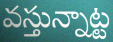
వస్తున్నాట్ట